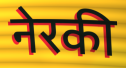
नेरकी